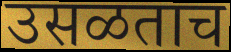
उसळताच